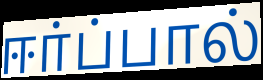
ஈர்ப்பால்